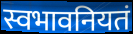
स्वभावनियतं